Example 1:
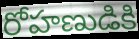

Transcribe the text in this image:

రోహణుడికి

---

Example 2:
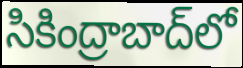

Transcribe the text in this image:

సికింద్రాబాద్‌లో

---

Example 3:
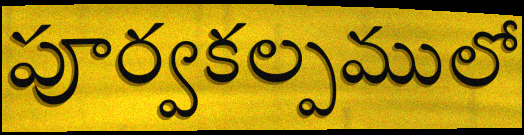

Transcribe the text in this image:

పూర్వకల్పములో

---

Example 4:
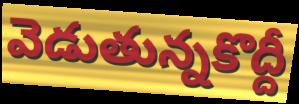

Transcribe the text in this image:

వెడుతున్నకొద్దీ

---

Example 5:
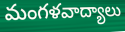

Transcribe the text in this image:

మంగళవాద్యాలు